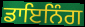
ਡਾਇਨਿੰਗ